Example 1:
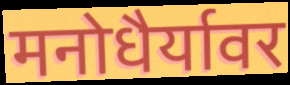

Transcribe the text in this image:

मनोधैर्यावर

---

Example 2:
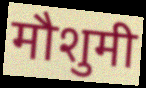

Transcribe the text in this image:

मौशुमी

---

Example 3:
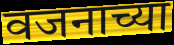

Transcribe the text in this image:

वजनाच्या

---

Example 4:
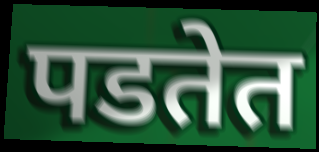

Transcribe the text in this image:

पडतेत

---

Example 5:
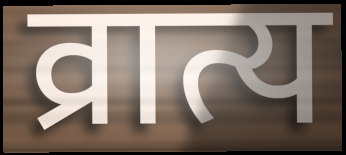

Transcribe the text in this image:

व्रात्य